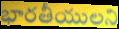
భారతీయులని